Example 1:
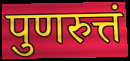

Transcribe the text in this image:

पुणरुत्तं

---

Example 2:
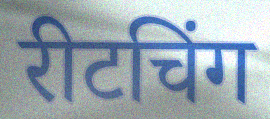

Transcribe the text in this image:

रीटचिंग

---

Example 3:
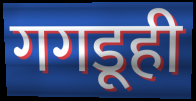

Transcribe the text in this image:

गगडूही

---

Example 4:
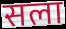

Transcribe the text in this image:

सला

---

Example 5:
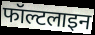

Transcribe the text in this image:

फॉल्टलाइन